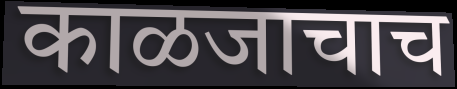
काळजाचाच